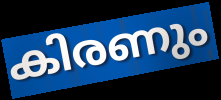
കിരണും